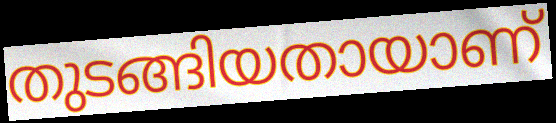
തുടങ്ങിയതായാണ്